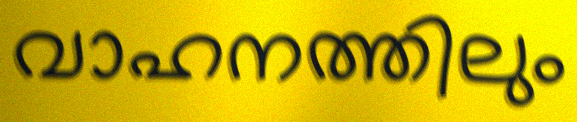
വാഹനത്തിലും